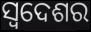
ସ୍ଵଦେଶର